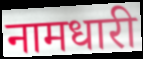
नामधारी